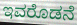
ಇವರೊಡನೆ